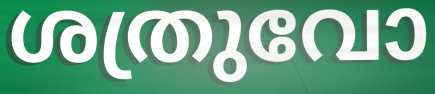
ശത്രുവോ